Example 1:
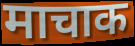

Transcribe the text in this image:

माचाक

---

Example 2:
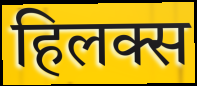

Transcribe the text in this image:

हिलक्स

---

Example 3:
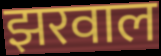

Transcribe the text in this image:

झरवाल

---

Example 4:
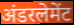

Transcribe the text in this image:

अंडरलेमेंट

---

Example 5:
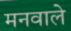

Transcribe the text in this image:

मनवाले